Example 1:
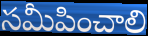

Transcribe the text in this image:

సమీపించాలి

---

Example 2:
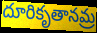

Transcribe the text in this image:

దూరికృతానమ్ర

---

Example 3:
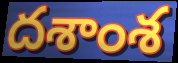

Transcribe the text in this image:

దశాంశ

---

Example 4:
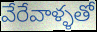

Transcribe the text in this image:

వేరేవాళ్ళతో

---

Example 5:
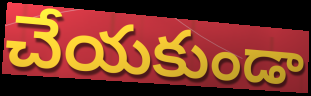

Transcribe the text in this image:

చేయకుండా